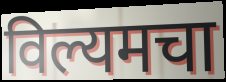
विल्यमचा